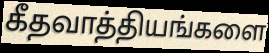
கீதவாத்தியங்களை